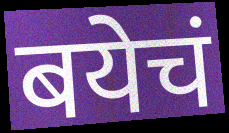
बयेचं